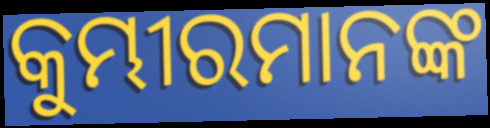
କୁମ୍ଭୀରମାନଙ୍କ